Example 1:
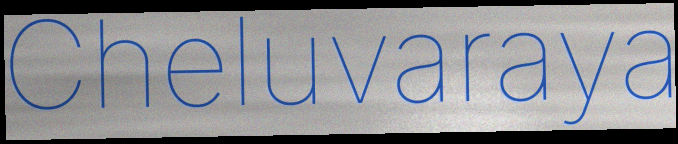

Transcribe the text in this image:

Cheluvaraya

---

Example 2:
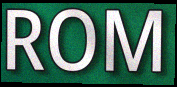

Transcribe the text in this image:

ROM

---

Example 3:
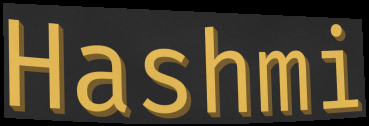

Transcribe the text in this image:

Hashmi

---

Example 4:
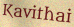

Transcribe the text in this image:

Kavithai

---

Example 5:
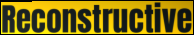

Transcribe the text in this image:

Reconstructive